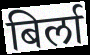
बिर्ला